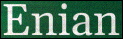
Enian